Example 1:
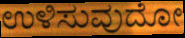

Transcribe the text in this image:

ಉಳಿಸುವುದೋ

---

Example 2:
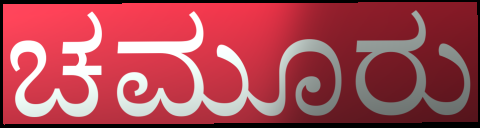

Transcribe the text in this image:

ಚಮೂರು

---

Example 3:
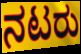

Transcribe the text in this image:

ನಟರು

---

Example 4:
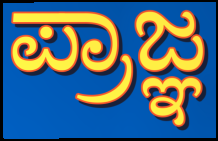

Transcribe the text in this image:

ಪ್ರಾಜ್ಞ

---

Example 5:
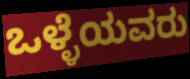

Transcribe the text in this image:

ಒಳ್ಳೆಯವರು